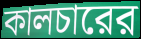
কালচারের